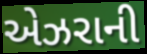
એઝરાની